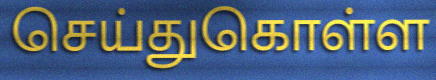
செய்துகொள்ள